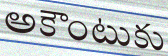
అకౌంటుకు